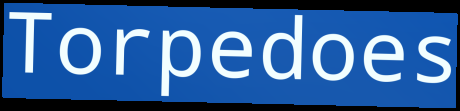
Torpedoes